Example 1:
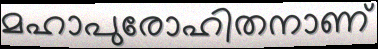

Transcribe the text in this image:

മഹാപുരോഹിതനാണ്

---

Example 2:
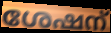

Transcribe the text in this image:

ശേഷന്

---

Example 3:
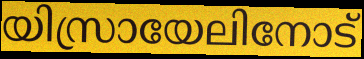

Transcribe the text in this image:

യിസ്രായേലിനോട്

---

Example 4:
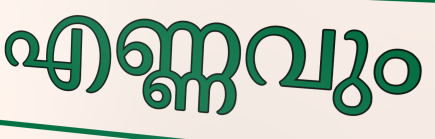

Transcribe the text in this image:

എണ്ണവും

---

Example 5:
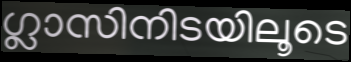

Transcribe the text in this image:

ഗ്ലാസിനിടയിലൂടെ